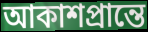
আকাশপ্রান্তে